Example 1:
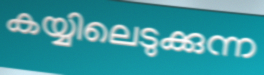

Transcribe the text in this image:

കയ്യിലെടുക്കുന്ന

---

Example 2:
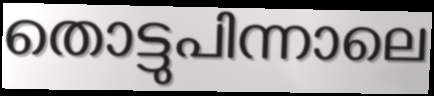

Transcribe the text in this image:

തൊട്ടുപിന്നാലെ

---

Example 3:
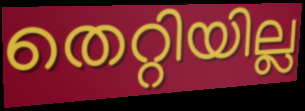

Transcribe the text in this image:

തെറ്റിയില്ല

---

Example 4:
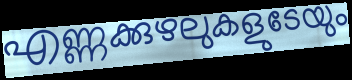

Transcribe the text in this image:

എണ്ണക്കുഴലുകളുടേയും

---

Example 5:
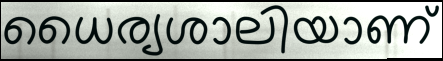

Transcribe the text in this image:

ധൈര്യശാലിയാണ്